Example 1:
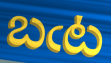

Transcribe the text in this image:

బఁట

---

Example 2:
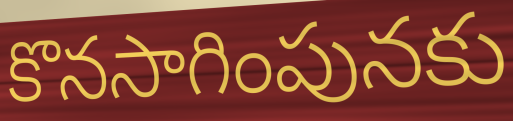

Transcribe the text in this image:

కొనసాగింపునకు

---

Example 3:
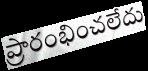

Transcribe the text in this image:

ప్రారంభించలేదు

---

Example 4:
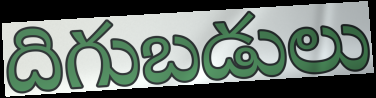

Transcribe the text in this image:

దిగుబడులు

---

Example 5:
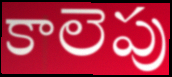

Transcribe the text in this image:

కాలెపు